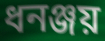
ধনঞ্জয়